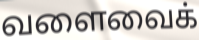
வளைவைக்